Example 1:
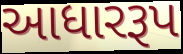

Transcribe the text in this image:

આધારરૂપ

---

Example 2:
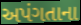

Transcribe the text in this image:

અપંગતાના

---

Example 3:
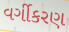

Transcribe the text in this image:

વર્ગીકરણ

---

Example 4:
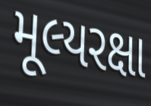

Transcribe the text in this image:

મૂલ્યરક્ષા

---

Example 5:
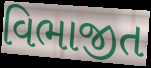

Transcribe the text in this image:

વિભાજીત